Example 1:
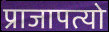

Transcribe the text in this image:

प्राजापत्यो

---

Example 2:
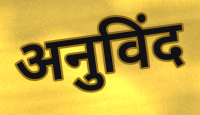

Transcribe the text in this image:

अनुविंद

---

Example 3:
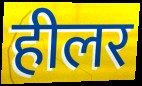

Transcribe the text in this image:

हीलर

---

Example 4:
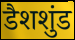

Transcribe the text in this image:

डैशशुंड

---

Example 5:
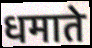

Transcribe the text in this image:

धमाते